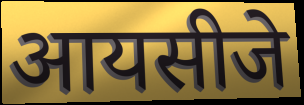
आयसीजे